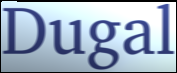
Dugal